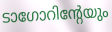
ടാഗോറിന്റേയും